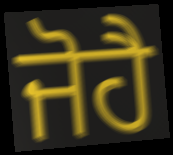
ਜੋਹੈ